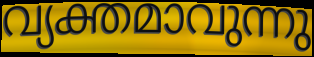
വ്യക്തമാവുന്നു